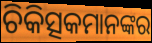
ଚିକିତ୍ସକମାନଙ୍କର